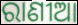
ରାଣୀଆ